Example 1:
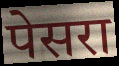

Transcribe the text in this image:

पेसरा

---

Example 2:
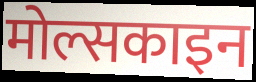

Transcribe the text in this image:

मोल्सकाइन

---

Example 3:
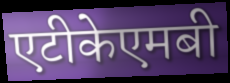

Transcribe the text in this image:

एटीकेएमबी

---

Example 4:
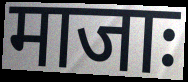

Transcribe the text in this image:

माजाः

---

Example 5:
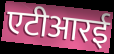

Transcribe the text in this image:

एटीआरई